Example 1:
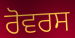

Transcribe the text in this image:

ਰੋਵਰਸ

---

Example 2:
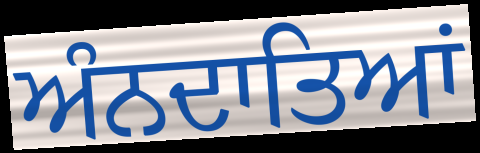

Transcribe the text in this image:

ਅੰਨਦਾਤਿਆਂ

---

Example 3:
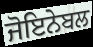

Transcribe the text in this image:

ਜੋਇਨੇਬਲ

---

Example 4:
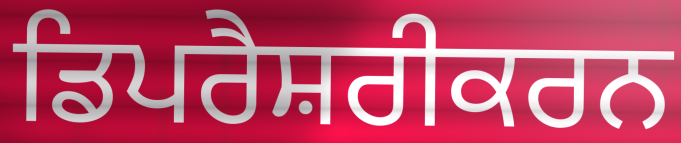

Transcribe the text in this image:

ਡਿਪਰੈਸ਼ਰੀਕਰਨ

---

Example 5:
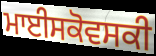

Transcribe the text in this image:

ਮਾਈਸਕੋਵਸਕੀ